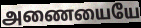
அணையையே